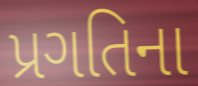
પ્રગતિના